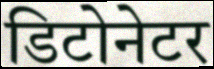
डिटोनेटर